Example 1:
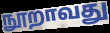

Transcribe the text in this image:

நூறாவது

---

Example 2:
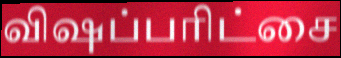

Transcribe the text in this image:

விஷப்பரிட்சை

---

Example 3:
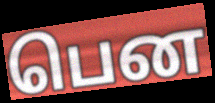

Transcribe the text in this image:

பென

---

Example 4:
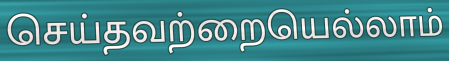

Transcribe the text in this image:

செய்தவற்றையெல்லாம்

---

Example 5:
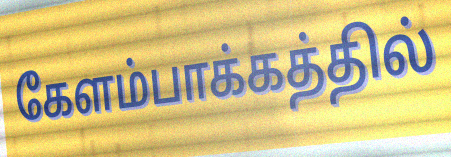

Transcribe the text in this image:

கேளம்பாக்கத்தில்